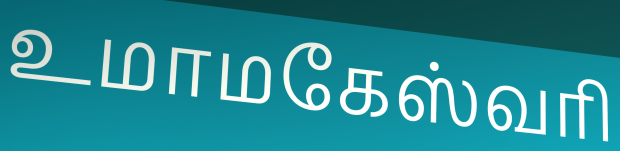
உமாமகேஸ்வரி